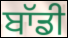
ਬਾੱਡੀ